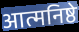
आत्मनिष्ठे